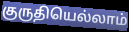
குருதியெல்லாம்